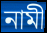
নামী